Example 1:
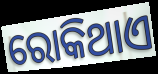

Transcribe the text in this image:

ରୋକିଥାଏ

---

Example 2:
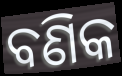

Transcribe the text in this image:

ବଣିକ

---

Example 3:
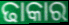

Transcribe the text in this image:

ଢାକାର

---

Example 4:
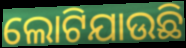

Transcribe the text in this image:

ଲୋଟିଯାଉଛି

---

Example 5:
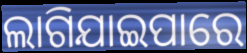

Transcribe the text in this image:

ଲାଗିଯାଇପାରେ